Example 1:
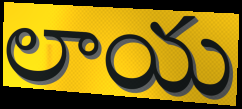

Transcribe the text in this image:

లాయ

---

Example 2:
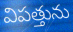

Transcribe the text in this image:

విపత్తును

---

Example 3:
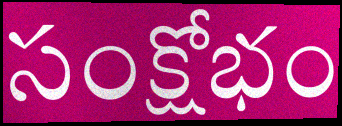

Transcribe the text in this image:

సంక్షోభం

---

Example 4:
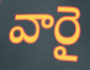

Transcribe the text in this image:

వారై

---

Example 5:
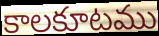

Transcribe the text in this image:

కాలకూటము